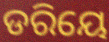
ଡରିୟେ